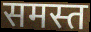
समस्त